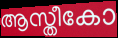
ആസ്തീകോ